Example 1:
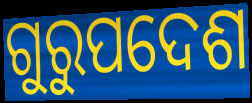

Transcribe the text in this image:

ଗୁରୁପଦେଶ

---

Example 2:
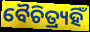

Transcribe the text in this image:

ବୈଚିତ୍ର୍ୟହିଁ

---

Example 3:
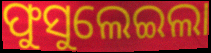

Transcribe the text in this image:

ଫୁସୁଲେଇଲା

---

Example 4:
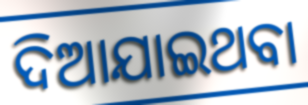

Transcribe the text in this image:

ଦିଆଯାଇଥବା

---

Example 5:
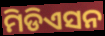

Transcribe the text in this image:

ମିଡିଏସନ